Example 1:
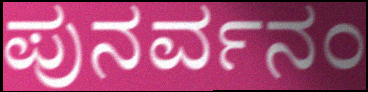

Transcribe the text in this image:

ಪುನರ್ವನಂ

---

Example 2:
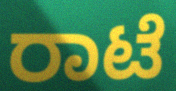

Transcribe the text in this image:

ರಾಟೆ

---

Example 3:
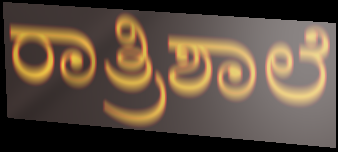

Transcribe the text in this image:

ರಾತ್ರಿಶಾಲೆ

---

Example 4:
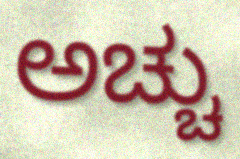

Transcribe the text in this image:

ಅಚ್ಚು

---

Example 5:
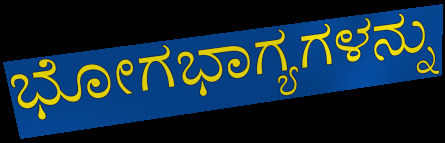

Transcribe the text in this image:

ಭೋಗಭಾಗ್ಯಗಳನ್ನು